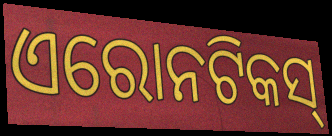
ଏରୋନଟିକସ୍